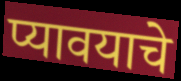
प्यावयाचे